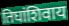
तिघांशिवाय